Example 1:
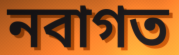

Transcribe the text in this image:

নবাগত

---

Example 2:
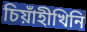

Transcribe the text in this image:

চিয়াঁহীখিনি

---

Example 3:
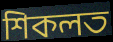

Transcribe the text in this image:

শিকলত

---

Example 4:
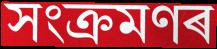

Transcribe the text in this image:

সংক্ৰমণৰ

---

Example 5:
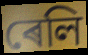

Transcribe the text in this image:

ৰেলি